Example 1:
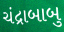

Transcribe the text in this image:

ચંદ્રાબાબુ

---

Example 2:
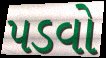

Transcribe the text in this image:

પડવો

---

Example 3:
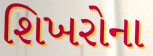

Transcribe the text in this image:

શિખરોના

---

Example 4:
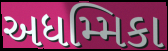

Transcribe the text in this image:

અધમ્મિકા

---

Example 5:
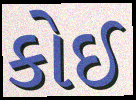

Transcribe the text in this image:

કોઈ